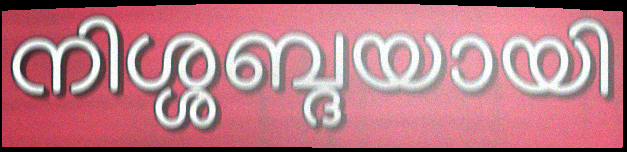
നിശ്ശബ്ദയായി